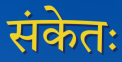
संकेतः